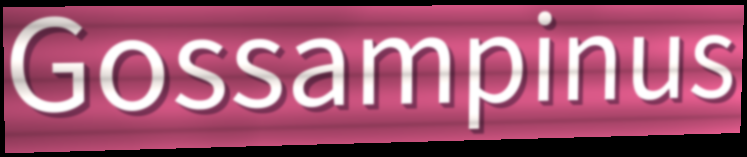
Gossampinus